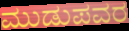
ಮುಡುಪವರ